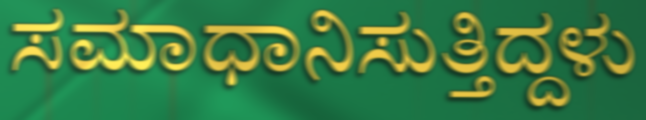
ಸಮಾಧಾನಿಸುತ್ತಿದ್ದಳು